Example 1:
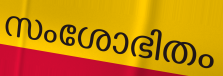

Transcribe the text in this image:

സംശോഭിതം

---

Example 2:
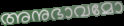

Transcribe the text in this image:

അനുഭാവമോ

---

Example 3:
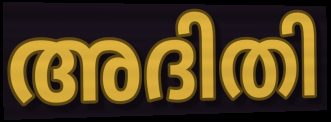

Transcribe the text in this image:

അദിതി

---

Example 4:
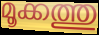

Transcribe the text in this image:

മൂക്കത്തു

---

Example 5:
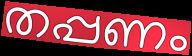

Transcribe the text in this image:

തപ്പണം